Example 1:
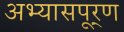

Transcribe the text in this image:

अभ्यासपूर्ण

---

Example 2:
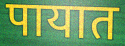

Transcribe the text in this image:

पायात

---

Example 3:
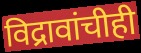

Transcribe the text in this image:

विद्रावांचीही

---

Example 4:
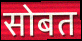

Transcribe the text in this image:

सोबत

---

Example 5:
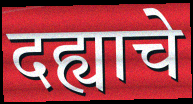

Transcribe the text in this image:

दह्याचे